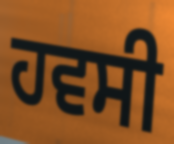
ਹਵਸੀ